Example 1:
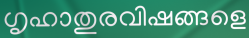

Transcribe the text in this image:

ഗൃഹാതുരവിഷങ്ങളെ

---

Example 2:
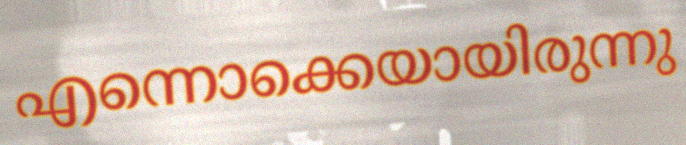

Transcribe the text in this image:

എന്നൊക്കെയായിരുന്നു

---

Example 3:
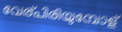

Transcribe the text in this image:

വേര്പിരിയുമ്പോള്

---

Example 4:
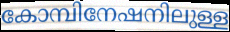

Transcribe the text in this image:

കോമ്പിനേഷനിലുള്ള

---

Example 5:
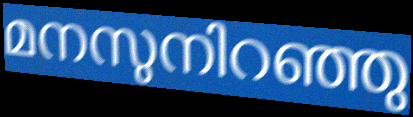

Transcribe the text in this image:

മനസുനിറഞ്ഞു